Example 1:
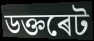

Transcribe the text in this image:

ডক্তৰেট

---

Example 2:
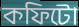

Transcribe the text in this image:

কফিটো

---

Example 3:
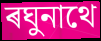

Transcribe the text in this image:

ৰঘুনাথে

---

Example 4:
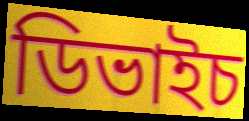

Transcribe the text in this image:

ডিভাইচ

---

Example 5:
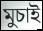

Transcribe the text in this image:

মুচাই